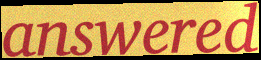
answered